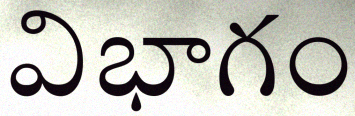
విభాగం